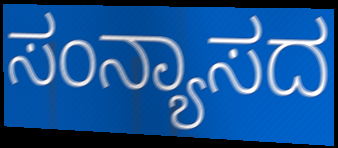
ಸಂನ್ಯಾಸದ